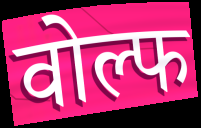
वोल्फ